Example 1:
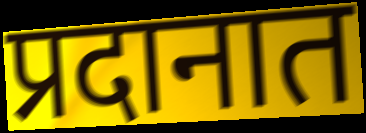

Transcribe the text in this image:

प्रदानात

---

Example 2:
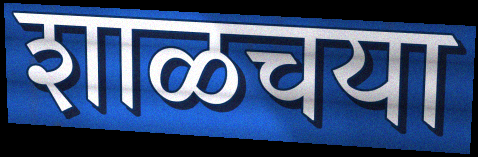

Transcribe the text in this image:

शाळचया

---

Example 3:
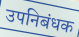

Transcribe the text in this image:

उपनिबंधक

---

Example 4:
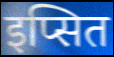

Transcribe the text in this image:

इप्सित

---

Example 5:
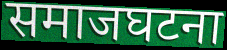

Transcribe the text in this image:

समाजघटना